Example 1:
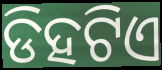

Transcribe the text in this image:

ଡିହଟିଏ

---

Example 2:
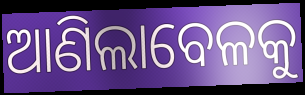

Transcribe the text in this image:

ଆଣିଲାବେଳକୁ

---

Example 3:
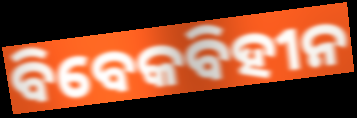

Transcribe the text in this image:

ବିବେକବିହୀନ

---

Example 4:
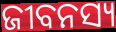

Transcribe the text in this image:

ଜୀବନସ୍ୟ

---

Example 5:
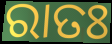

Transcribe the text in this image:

ରାତଃ